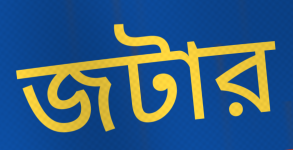
জটার